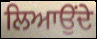
ਲਿਆਉਂਦੇ